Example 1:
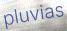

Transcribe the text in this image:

pluvias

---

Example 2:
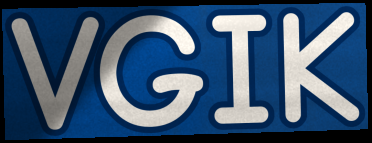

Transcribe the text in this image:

VGIK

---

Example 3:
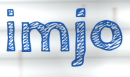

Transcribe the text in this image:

imjo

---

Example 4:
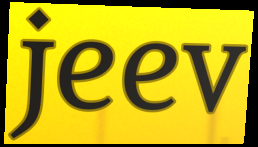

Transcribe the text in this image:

jeev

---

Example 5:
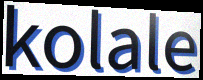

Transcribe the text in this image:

kolale